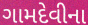
ગામદેવીના